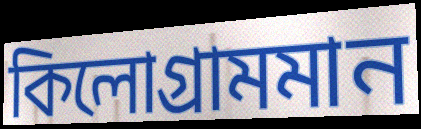
কিলোগ্ৰামমান